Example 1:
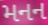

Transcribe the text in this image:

મનન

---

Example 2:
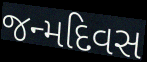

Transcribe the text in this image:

જન્મદિવસ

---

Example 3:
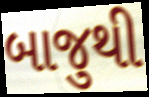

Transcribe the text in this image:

બાજુથી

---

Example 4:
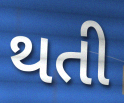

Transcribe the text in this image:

થતી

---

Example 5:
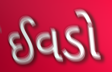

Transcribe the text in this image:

ઈવડો